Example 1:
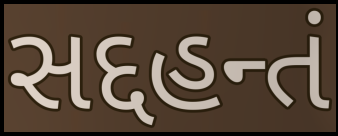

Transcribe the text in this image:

સદ્દહન્તં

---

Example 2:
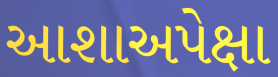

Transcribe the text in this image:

આશાઅપેક્ષા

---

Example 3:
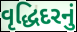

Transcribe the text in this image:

વૃદ્ધિદરનું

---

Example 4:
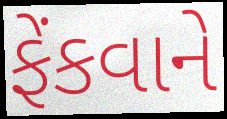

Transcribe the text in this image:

ફેંકવાને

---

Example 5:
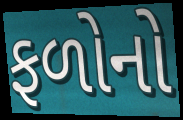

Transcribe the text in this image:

ફળોનો